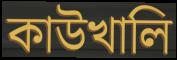
কাউখালি